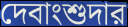
দেবাংশুদার